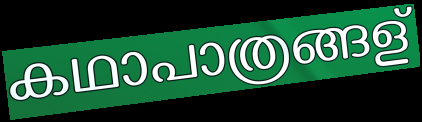
കഥാപാത്രങ്ങള്